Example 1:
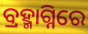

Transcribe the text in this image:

ବ୍ରହ୍ମାଗ୍ନିରେ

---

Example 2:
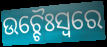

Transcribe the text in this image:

ଉଚ୍ଚୈଃସ୍ୱରେ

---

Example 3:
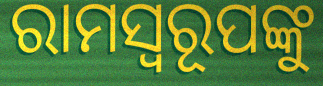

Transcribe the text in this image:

ରାମସ୍ୱରୂପଙ୍କୁ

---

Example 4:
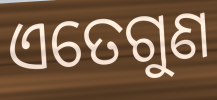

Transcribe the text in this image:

ଏତେଗୁଣ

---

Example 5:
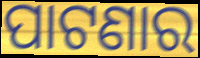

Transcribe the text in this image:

ପାଟଣାର